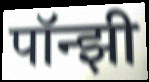
पॉन्झी